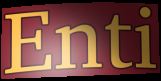
Enti